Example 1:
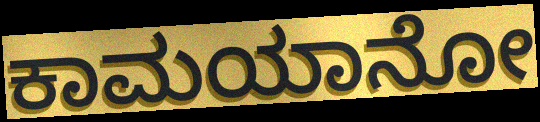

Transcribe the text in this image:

ಕಾಮಯಾನೋ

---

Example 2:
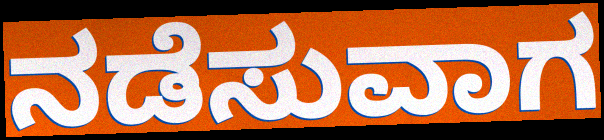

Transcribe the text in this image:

ನಡೆಸುವಾಗ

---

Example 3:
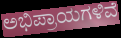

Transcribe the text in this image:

ಅಭಿಪ್ರಾಯಗಳಿವೆ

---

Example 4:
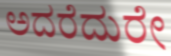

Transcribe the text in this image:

ಅದರೆದುರೇ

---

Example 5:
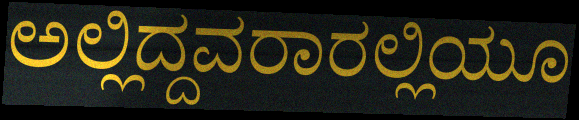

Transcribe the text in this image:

ಅಲ್ಲಿದ್ದವರಾರಲ್ಲಿಯೂ